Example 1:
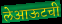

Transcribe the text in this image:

लेआऊटची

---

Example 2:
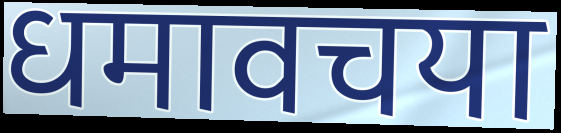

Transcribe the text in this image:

धमावचया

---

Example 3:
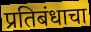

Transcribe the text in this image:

प्रतिबंधाचा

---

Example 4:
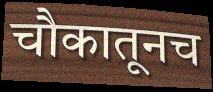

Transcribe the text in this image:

चौकातूनच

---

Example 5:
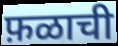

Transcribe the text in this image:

फ़ळाची